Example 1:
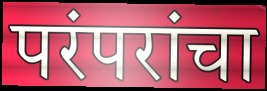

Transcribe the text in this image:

परंपरांचा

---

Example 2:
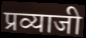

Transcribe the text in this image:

प्रव्याजी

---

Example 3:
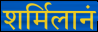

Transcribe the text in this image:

शर्मिलानं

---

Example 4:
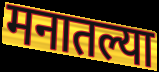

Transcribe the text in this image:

मनातल्या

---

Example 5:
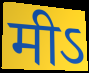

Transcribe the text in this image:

मीऽ